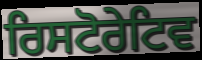
ਰਿਸਟੋਰੇਟਿਵ